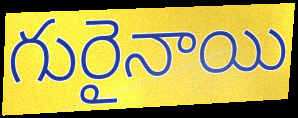
గురైనాయి